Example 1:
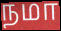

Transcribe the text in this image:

நமா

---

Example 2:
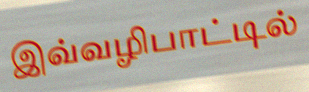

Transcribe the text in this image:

இவ்வழிபாட்டில்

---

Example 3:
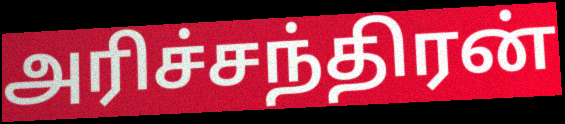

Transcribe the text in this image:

அரிச்சந்திரன்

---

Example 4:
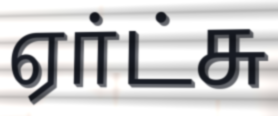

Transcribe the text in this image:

ஏர்ட்சு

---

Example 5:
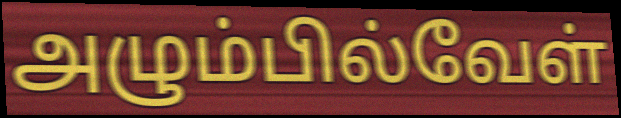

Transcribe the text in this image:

அழும்பில்வேள்